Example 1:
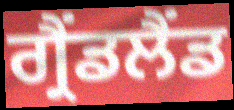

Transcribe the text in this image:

ਗ੍ਰੈਂਡਲੈਂਡ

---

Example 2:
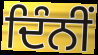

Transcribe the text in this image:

ਦਿੰਨੀਂ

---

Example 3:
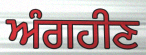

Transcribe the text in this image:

ਅੰਗਹੀਣ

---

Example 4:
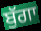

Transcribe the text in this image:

ਬੁੱਗਾ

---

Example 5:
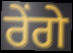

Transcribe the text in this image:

ਰੇਂਗੇ